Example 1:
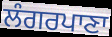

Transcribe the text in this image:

ਲੰਗਰਪਾਣਾ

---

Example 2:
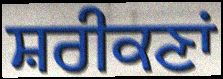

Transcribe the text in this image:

ਸ਼ਰੀਕਣਾਂ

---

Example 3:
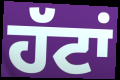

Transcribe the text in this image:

ਹੱਟਾਂ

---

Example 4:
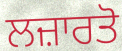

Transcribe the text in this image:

ਲਜ਼ਾਰਤੋ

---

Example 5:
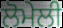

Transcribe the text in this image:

ਲੋਮੇਲੀ